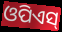
ଓପିଏସ୍